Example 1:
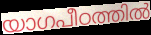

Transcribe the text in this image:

യാഗപീഠത്തിൽ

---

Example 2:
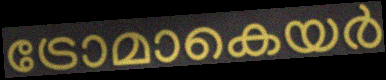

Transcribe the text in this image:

ട്രോമാകെയർ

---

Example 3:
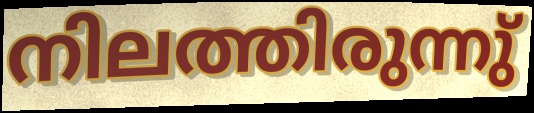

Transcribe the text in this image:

നിലത്തിരുന്നു്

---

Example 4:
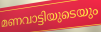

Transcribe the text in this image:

മണവാട്ടിയുടെയും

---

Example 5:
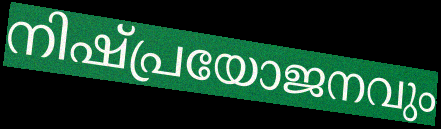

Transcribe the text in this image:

നിഷ്പ്രയോജനവും